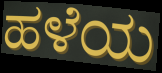
ಹಳೆಯ